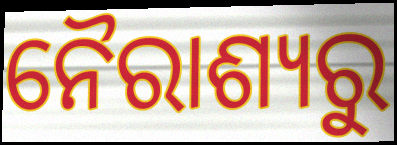
ନୈରାଶ୍ୟରୁ